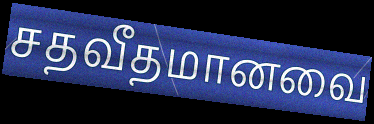
சதவீதமானவை